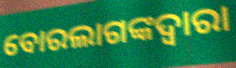
ବୋରଲାଗଙ୍କଦ୍ୱାରା